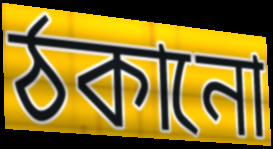
ঠকানো